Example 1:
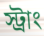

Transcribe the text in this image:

স্ট্রাং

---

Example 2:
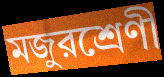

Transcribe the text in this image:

মজুরশ্রেণী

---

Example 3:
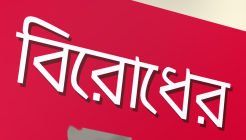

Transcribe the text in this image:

বিরোধের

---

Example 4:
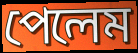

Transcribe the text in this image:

পেলেম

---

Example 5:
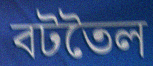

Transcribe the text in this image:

বটতৈল